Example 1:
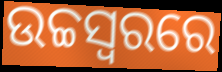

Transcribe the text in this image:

ଉଚ୍ଚସ୍ୱରରେ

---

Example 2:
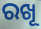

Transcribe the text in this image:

ରଖୂ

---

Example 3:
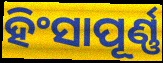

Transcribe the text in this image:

ହିଂସାପୂର୍ଣ୍ଣ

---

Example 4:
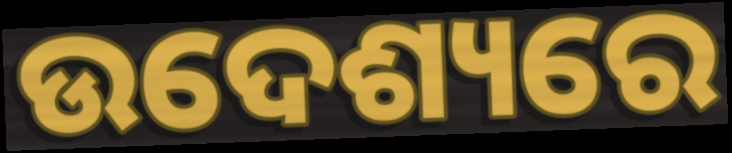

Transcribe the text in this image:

ଉଦେଶ୍ୟରେ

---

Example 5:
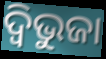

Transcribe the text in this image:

ଦ୍ବିଭୁଜା